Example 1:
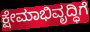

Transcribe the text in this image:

ಕ್ಷೇಮಾಭಿವೃದ್ಧಿಗೆ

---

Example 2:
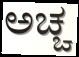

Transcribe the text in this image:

ಅಚ್ಚ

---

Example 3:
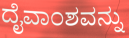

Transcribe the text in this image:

ದೈವಾಂಶವನ್ನು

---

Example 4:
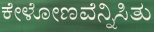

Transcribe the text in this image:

ಕೇಳೋಣವೆನ್ನಿಸಿತು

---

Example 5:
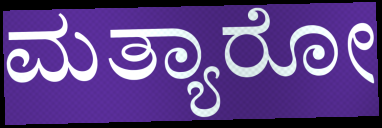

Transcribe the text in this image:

ಮತ್ಯಾರೋ